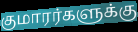
குமாரர்களுக்கு